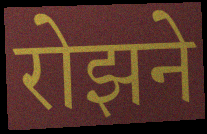
रोझने